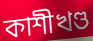
কাশীখণ্ড